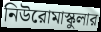
নিউরোমাস্কুলার